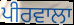
ਪੀਰਵਾਲਾ